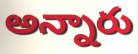
అన్నారు